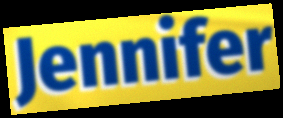
Jennifer